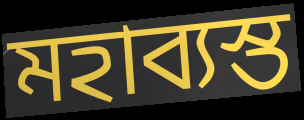
মহাব্যস্ত